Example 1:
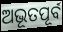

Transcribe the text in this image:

ଅଭୂତପୂର୍ବ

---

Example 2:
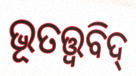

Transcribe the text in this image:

ଭୂତତ୍ତ୍ବବିଦ୍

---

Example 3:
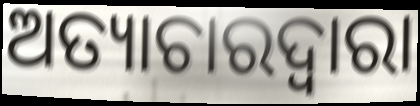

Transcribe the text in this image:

ଅତ୍ୟାଚାରଦ୍ୱାରା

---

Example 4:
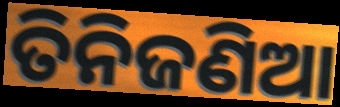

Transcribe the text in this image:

ତିନିଜଣିଆ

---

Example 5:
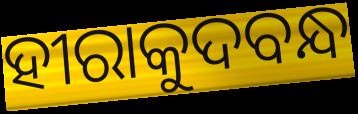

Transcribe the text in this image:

ହୀରାକୁଦବନ୍ଧ